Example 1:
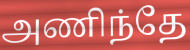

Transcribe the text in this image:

அணிந்தே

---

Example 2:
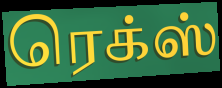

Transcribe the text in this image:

ரெக்ஸ்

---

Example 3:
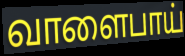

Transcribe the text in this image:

வாளைபாய்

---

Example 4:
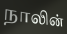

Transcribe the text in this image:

நாலின்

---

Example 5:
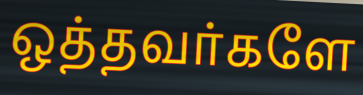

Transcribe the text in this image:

ஒத்தவர்களே